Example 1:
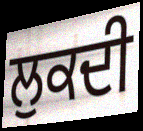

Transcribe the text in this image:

ਲੁਕਦੀ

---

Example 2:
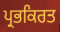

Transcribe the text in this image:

ਪ੍ਰਭਕਿਰਤ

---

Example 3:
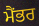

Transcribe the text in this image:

ਮੈਂਭਰ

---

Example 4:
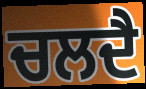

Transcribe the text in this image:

ਚਲਦੈ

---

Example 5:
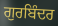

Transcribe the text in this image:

ਗੁਰਬਿੰਦਰ